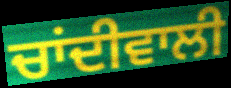
ਚਾਂਦੀਵਾਲੀ